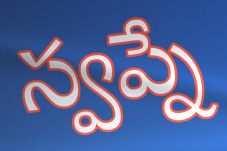
స్వప్నే